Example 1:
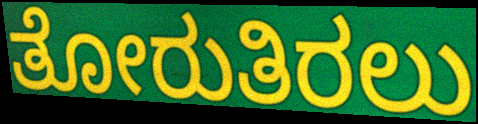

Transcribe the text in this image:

ತೋರುತಿರಲು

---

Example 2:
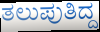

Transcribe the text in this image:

ತಲುಪುತಿದ್ದ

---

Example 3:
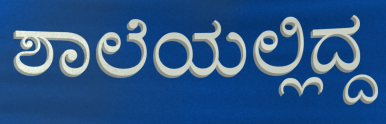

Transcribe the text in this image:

ಶಾಲೆಯಲ್ಲಿದ್ದ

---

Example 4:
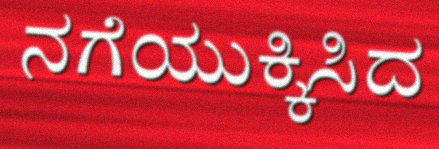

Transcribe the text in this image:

ನಗೆಯುಕ್ಕಿಸಿದ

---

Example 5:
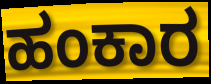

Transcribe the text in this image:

ಹಂಕಾರ